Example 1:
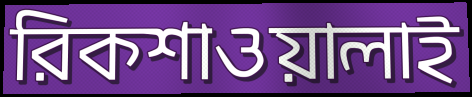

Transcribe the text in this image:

রিকশাওয়ালাই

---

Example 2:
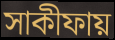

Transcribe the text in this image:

সাকীফায়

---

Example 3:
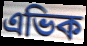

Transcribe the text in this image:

এভিক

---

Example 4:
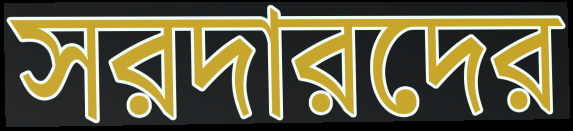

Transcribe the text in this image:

সরদারদের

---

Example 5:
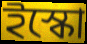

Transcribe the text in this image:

ইস্কো